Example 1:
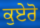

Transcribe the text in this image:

ਕੁਏਰੋ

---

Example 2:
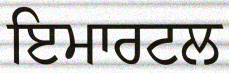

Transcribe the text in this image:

ਇਮਾਰਟਲ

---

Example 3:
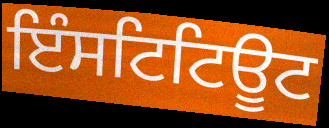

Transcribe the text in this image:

ਇੰਸਟਿਟਿਊਟ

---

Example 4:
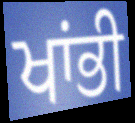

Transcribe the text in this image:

ਖਾਂਭੀ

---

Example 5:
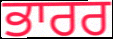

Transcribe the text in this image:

ਭਾਰਰ